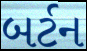
બર્ટન